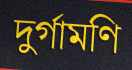
দুর্গামণি